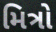
મિત્રો